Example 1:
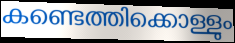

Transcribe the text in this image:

കണ്ടെത്തിക്കൊള്ളും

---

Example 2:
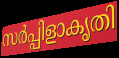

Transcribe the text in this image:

സർപ്പിളാകൃതി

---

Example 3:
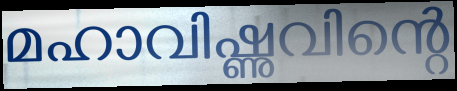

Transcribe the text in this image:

മഹാവിഷ്ണുവിന്റെ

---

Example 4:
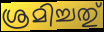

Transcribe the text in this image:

ശ്രമിച്ചതു്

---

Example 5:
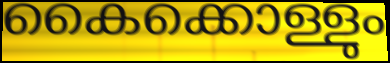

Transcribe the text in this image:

കൈക്കൊള്ളും